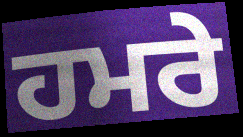
ਹਮਰੇ